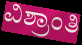
ವಿಶ್ರಾಂತಿ